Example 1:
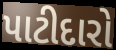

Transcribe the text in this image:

પાટીદારો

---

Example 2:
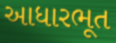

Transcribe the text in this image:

આધારભૂત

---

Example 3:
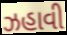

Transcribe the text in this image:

ઝહાવી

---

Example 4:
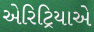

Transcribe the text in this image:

એરિટ્રિયાએ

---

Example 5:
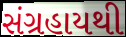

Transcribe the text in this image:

સંગ્રહાયથી